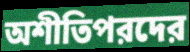
অশীতিপরদের